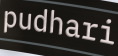
pudhari